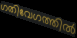
ഗതിവേഗത്തിൽ